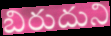
బిరుదుని